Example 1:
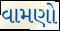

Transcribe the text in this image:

વામણો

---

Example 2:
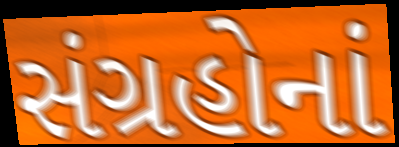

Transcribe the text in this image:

સંગ્રહોનાં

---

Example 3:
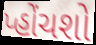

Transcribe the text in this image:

પ્હોંચશો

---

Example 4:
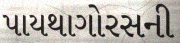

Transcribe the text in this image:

પાયથાગોરસની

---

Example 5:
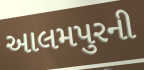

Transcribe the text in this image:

આલમપુરની